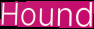
Hound